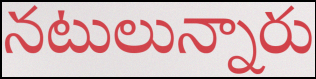
నటులున్నారు